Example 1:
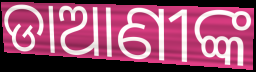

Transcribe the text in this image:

ଡାଆଣୀଙ୍କ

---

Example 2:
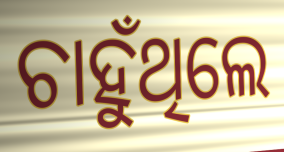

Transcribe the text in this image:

ଚାହୁଁଥିଲେ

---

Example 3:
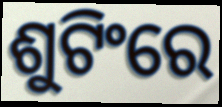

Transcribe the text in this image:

ଶୁଟିଂରେ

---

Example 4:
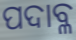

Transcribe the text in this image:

ପଦାବ୍ଳ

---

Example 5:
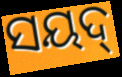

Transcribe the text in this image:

ସୟଦ୍